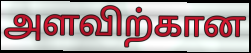
அளவிற்கான